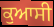
ਕੁਆਸੀ